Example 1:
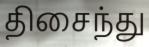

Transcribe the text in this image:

திசைந்து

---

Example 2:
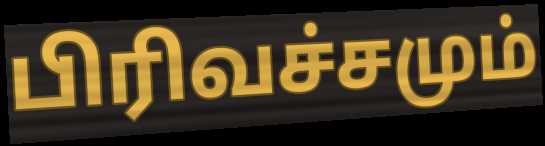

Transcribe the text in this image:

பிரிவச்சமும்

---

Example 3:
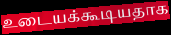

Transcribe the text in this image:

உடையக்கூடியதாக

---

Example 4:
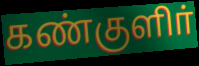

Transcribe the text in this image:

கண்குளிர்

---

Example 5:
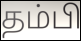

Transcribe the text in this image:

தம்பி